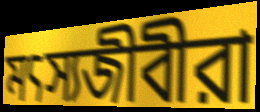
মৎস্যজীবীরা